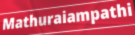
Mathuraiampathi